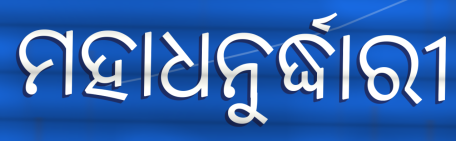
ମହାଧନୁର୍ଦ୍ଧାରୀ